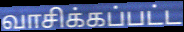
வாசிக்கப்பட்ட